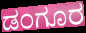
ಡಂಗೂರ